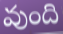
వుంది